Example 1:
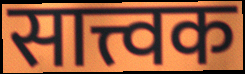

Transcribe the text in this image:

सात्त्वक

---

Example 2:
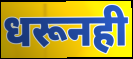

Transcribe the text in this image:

धरूनही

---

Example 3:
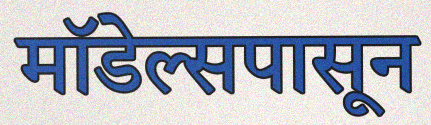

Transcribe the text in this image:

मॉडेल्सपासून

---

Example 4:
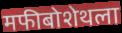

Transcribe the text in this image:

मफीबोशेथला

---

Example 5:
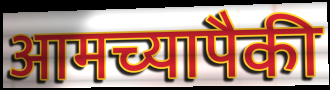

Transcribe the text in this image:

आमच्यापैकी